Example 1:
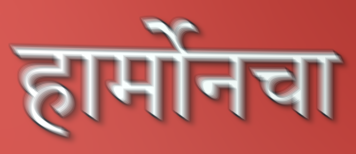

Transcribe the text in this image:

हार्मोनचा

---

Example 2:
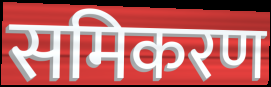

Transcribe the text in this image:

समिकरण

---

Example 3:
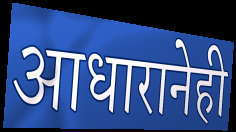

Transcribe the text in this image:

आधारानेही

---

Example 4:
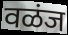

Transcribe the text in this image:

वळंज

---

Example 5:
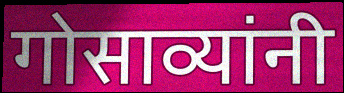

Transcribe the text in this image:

गोसाव्यांनी